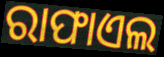
ରାଫାଏଲ